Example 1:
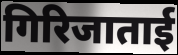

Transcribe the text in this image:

गिरिजाताई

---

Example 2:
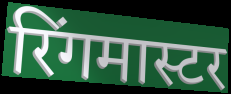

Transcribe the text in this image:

रिंगमास्टर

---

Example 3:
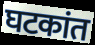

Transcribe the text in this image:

घटकांत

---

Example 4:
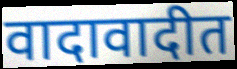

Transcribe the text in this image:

वादावादीत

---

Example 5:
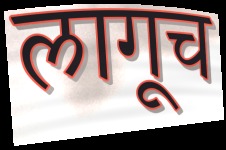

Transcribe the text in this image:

लागूच